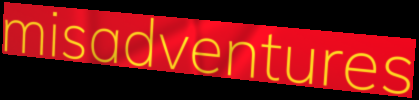
misadventures